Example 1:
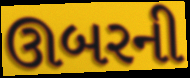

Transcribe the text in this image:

ઊબરની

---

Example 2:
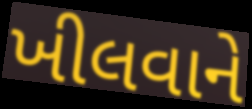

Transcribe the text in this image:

ખીલવાને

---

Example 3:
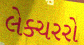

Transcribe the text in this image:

લેક્ચરરો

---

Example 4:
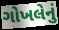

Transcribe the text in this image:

ગોખલેનું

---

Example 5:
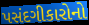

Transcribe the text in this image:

પસંદગીકારોનો